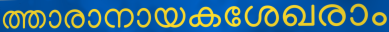
ത്താരാനായകശേഖരാം